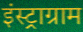
इंस्ट्राग्राम